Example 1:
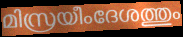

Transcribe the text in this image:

മിസ്രയീംദേശത്തും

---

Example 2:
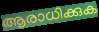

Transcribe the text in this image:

ആരാധിക്കുക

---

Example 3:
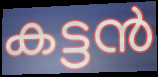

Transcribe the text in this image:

കട്ടൻ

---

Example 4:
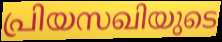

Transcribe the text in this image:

പ്രിയസഖിയുടെ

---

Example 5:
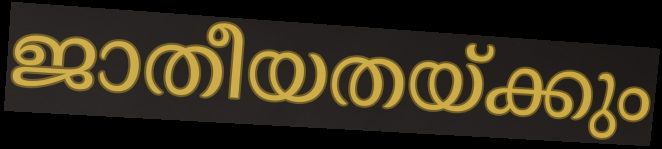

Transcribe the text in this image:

ജാതീയതയ്ക്കും